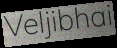
Veljibhai